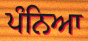
ਪੰਨਿਆ